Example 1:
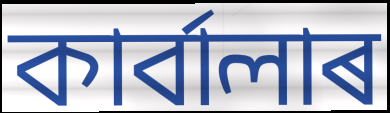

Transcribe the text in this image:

কাৰ্বালাৰ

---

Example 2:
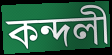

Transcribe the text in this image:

কন্দলী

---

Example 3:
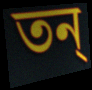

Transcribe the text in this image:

তন্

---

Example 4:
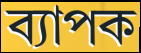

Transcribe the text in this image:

ব্যাপক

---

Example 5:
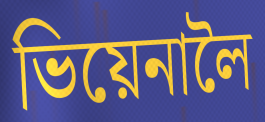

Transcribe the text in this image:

ভিয়েনালৈ